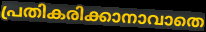
പ്രതികരിക്കാനാവാതെ